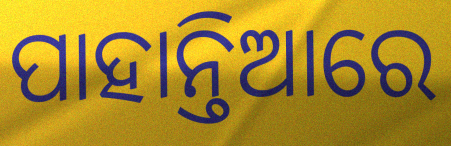
ପାହାନ୍ତିଆରେ